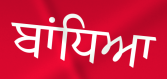
ਬਾਂਧਿਆ